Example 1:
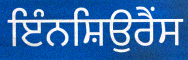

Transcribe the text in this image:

ਇੰਨਸ਼ਿਉਰੈਂਸ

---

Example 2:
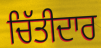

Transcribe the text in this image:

ਚਿੱਤੀਦਾਰ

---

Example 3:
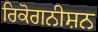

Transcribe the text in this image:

ਰਿਕੋਗਨੀਸ਼ਨ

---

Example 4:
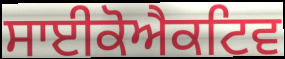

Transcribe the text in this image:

ਸਾਈਕੋਐਕਟਿਵ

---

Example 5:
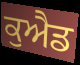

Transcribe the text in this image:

ਕੁਐਡ